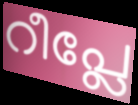
റീപ്ലേ